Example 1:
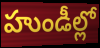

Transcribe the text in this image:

హుండీల్లో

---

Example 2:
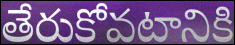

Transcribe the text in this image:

తేరుకోవటానికి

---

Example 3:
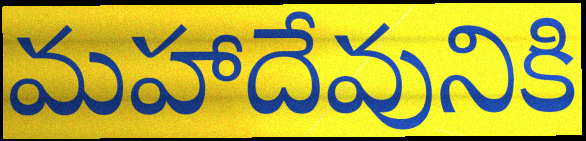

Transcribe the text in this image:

మహాదేవునికి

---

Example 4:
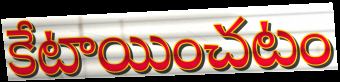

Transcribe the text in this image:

కేటాయించటం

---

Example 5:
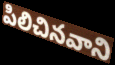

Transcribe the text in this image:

పిలిచినవాని